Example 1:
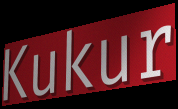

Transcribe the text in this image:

Kukur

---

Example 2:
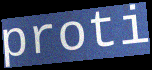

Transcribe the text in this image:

proti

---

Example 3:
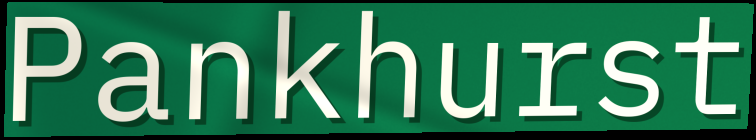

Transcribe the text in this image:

Pankhurst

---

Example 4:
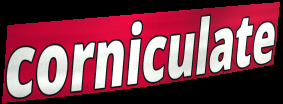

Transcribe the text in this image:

corniculate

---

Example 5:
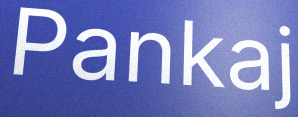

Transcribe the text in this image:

Pankaj